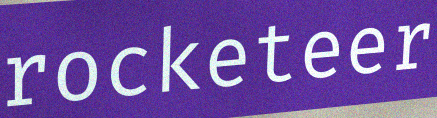
rocketeer